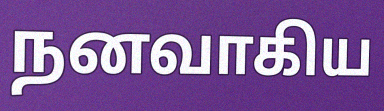
நனவாகிய